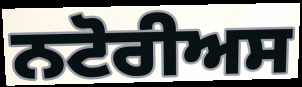
ਨਟੋਰੀਅਸ